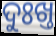
ଦୁଃଖ୍ତ